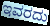
ಇವರದು